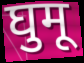
घुमू